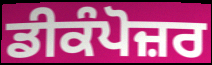
ਡੀਕੰਪੋਜ਼ਰ